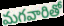
మగవారితో